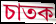
চাতক